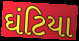
ઘંટિયા